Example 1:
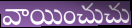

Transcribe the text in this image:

వాయించుచు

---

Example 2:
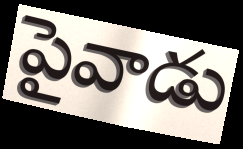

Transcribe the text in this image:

పైవాడు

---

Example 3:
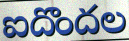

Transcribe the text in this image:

ఐదొందల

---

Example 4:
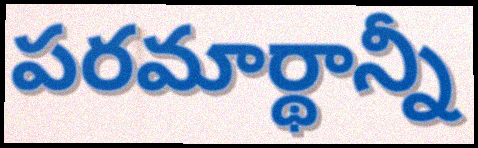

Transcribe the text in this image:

పరమార్థాన్నీ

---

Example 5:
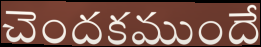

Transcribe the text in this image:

చెందకముందే